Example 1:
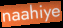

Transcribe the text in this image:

naahiye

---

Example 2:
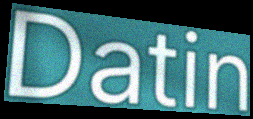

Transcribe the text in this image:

Datin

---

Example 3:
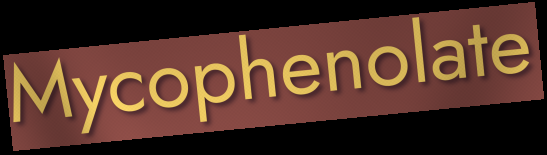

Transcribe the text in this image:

Mycophenolate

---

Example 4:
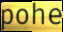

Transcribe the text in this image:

pohe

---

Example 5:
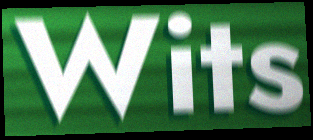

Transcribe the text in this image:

Wits